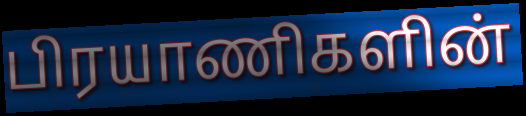
பிரயாணிகளின்